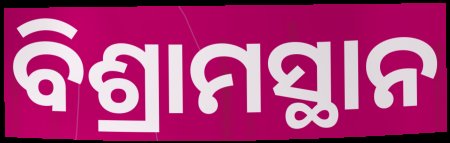
ବିଶ୍ରାମସ୍ଥାନ